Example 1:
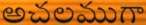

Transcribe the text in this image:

అచలముగా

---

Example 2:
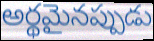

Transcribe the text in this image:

అర్థమైనప్పుడు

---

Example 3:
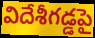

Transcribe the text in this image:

విదేశీగడ్డపై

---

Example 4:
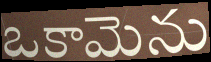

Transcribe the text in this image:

ఒకామెను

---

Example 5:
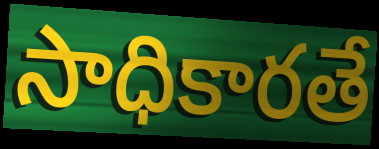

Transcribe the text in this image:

సాధికారతే